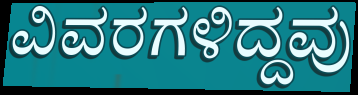
ವಿವರಗಳಿದ್ದವು